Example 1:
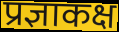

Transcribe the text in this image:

प्रज्ञाकक्ष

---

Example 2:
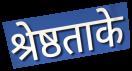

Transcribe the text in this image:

श्रेष्ठताके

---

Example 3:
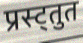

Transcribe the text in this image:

प्रस्ट्तुत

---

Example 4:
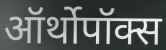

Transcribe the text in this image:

ऑर्थोपॉक्स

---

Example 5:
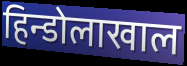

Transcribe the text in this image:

हिन्डोलाखाल